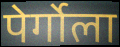
पेर्गोला